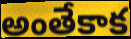
అంతేకాక